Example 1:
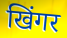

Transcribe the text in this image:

खिंगर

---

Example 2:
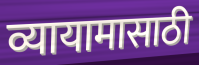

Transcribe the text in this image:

व्यायामासाठी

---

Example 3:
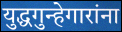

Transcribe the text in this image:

युद्धगुन्हेगारांना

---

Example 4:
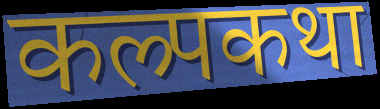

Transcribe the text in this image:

कल्पकथा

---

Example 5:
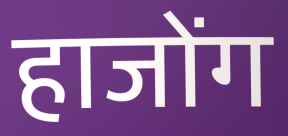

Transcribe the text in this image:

हाजोंग